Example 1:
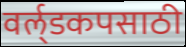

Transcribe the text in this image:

वर्ल्डकपसाठी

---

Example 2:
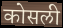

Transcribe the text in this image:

कोसली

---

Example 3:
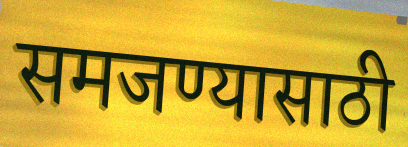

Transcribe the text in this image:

समजण्यासाठी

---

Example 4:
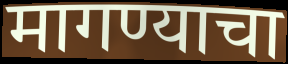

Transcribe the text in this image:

मागण्याचा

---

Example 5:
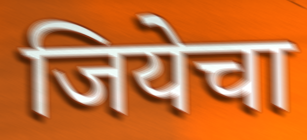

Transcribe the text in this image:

जियेचा